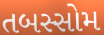
તબસ્સોમ